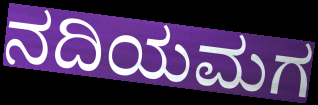
ನದಿಯಮಗ